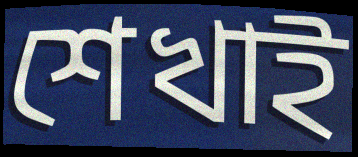
শেখাই